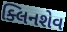
ક્લિનશેવ